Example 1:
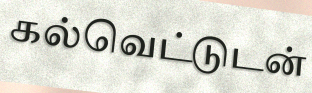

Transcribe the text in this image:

கல்வெட்டுடன்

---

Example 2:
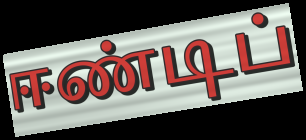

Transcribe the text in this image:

ஈண்டிப்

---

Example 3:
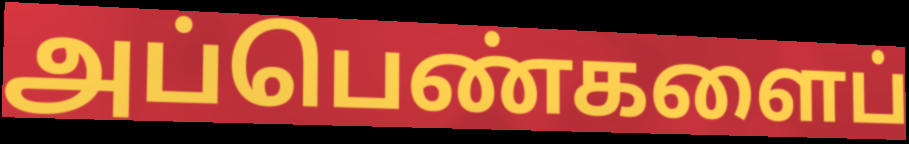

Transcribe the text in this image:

அப்பெண்களைப்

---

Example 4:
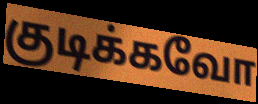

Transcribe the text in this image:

குடிக்கவோ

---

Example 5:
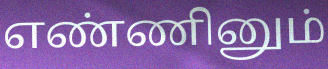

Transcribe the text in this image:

எண்ணினும்